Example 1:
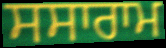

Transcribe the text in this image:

ਸਸਾਰਾਮ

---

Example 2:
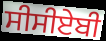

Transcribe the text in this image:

ਸੀਸੀਏਬੀ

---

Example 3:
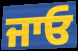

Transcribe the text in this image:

ਜਾਓ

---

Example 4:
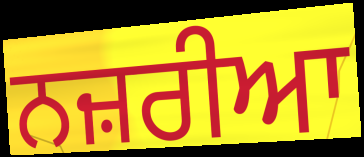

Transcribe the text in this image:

ਨਜ਼ਰੀਆ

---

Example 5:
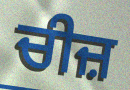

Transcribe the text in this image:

ਚੀਜ਼